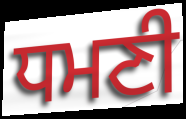
ਧਮਣੀ